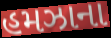
હમઝાના